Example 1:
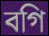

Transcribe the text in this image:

বগি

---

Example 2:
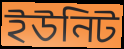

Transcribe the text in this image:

ইউনিট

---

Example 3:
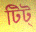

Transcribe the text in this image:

টিট্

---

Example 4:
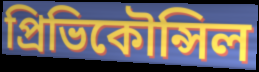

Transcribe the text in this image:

প্রিভিকৌন্সিল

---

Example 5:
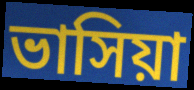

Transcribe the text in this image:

ভাসিয়া